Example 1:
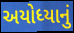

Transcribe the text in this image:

અયોધ્યાનું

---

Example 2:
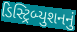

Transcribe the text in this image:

ડિસ્ટ્રિબ્યુશનનું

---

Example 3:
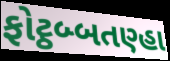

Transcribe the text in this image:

ફોટ્ઠબ્બતણ્હા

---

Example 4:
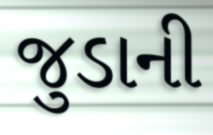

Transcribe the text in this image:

જુડાની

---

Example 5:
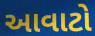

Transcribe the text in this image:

આવાટો